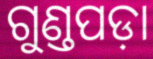
ଗୁଣ୍ଡପଡ଼ା